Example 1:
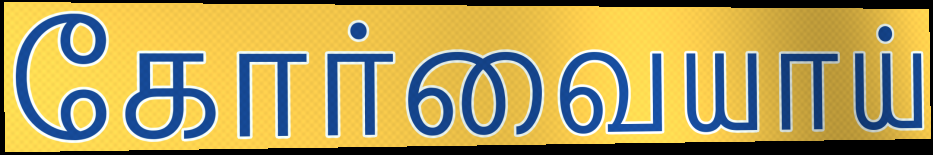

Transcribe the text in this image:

கோர்வையாய்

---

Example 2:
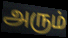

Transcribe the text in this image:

அரும்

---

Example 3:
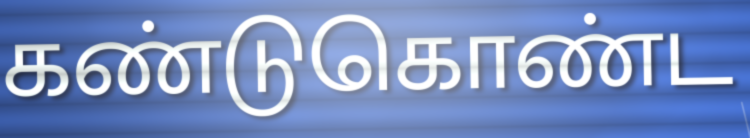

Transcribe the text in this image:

கண்டுகொண்ட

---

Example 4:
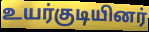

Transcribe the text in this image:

உயர்குடியினர்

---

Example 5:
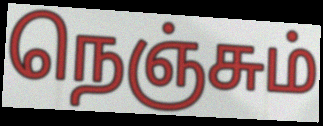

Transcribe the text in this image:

நெஞ்சும்